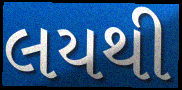
લયથી